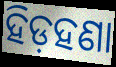
ହିଡ଼ହଣା